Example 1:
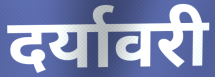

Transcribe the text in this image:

दर्यावरी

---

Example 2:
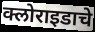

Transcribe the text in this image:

क्लोराइडाचे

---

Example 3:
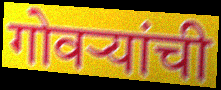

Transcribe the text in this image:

गोवऱ्यांची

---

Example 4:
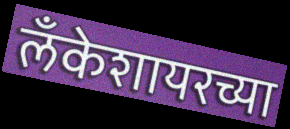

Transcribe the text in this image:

लँकेशायरच्या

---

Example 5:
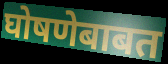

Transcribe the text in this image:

घोषणेबाबत